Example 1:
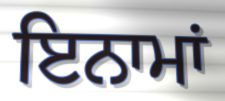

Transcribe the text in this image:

ਇਨਾਮਾਂ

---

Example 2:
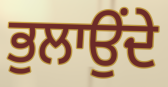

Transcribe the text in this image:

ਭੁਲਾਉਂਦੇ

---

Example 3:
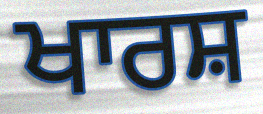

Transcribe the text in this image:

ਖਾਰਸ਼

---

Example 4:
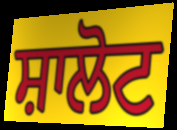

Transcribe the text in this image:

ਸ਼ਾਲੋਟ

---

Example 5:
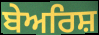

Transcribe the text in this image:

ਬੇਅਰਿਸ਼